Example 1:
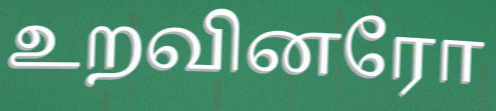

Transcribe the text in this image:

உறவினரோ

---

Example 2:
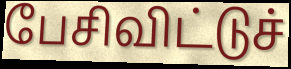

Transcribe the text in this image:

பேசிவிட்டுச்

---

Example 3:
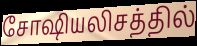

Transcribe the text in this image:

சோஷியலிசத்தில்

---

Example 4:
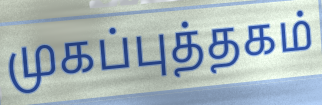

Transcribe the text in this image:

முகப்புத்தகம்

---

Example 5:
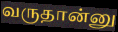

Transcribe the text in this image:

வருதான்னு